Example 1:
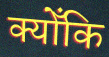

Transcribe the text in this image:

क्योँकि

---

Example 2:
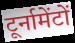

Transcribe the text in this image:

टूर्नामेंटों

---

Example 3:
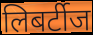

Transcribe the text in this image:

लिबर्टीज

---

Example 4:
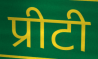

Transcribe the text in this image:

प्रीटी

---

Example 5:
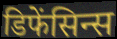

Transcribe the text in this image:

डिफेंसिन्स